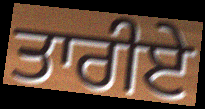
ਤਾਰੀਏ